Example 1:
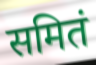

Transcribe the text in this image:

समितं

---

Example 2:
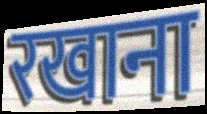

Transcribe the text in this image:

रखाना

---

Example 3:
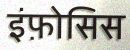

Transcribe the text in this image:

इंफ़ोसिस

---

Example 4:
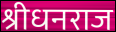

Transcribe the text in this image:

श्रीधनराज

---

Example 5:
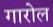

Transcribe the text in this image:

गारोल